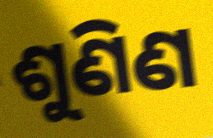
ଶୁଣିଣ